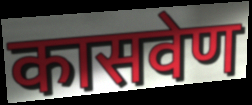
कासवेण